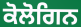
ਕੋਲੋਗਿਨ